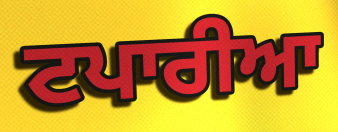
ਟਪਾਰੀਆ